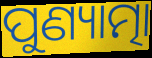
ପୁଣ୍ୟାତ୍ମା